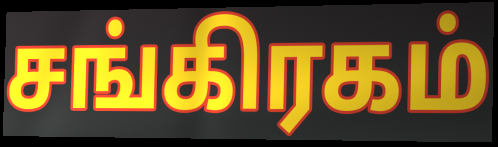
சங்கிரகம்